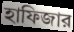
হাফিজার